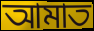
আমাত